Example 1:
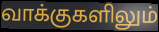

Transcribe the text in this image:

வாக்குகளிலும்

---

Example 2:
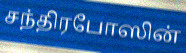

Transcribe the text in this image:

சந்திரபோஸின்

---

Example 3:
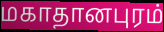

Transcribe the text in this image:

மகாதானபுரம்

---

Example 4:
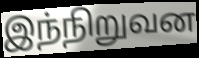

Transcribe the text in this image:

இந்நிறுவன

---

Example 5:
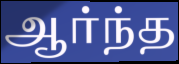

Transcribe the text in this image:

ஆர்ந்த